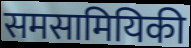
समसामियिकी